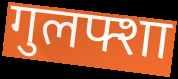
गुलफ्शा